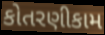
કોતરણીકામ